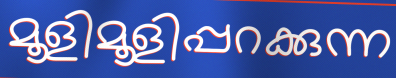
മൂളിമൂളിപ്പറക്കുന്ന